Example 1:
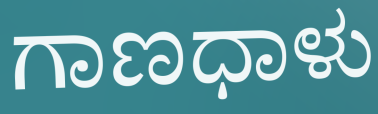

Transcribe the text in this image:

ಗಾಣಧಾಳು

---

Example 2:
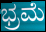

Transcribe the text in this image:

ಭ್ರಮೆ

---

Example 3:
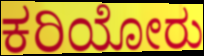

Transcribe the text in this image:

ಕರಿಯೋರು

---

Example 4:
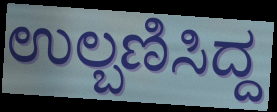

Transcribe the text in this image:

ಉಲ್ಬಣಿಸಿದ್ದ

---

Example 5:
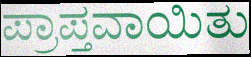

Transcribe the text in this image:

ಪ್ರಾಪ್ತವಾಯಿತು